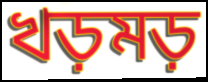
খড়মড়